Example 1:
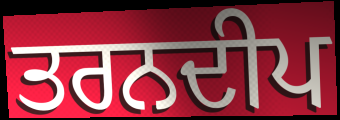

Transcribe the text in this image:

ਤਰਨਦੀਪ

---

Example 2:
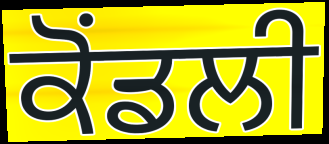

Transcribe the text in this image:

ਕੋਂਡਲੀ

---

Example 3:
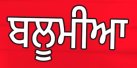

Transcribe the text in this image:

ਬਲੂਮੀਆ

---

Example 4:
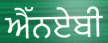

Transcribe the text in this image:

ਐੱਨਏਬੀ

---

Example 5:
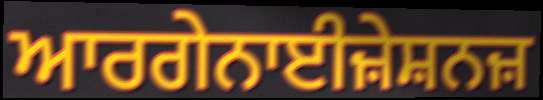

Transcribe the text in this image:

ਆਰਗੇਨਾਈਜ਼ੇਸ਼ਨਜ਼